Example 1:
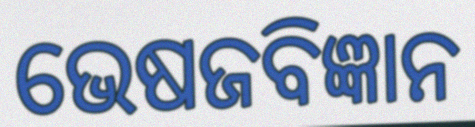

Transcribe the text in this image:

ଭେଷଜବିଜ୍ଞାନ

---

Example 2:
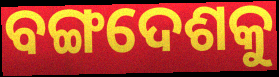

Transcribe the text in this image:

ବଙ୍ଗଦେଶକୁ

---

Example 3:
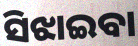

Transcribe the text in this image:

ସିଝାଇବା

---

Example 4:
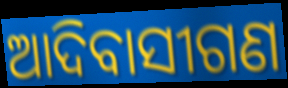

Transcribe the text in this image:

ଆଦିବାସୀଗଣ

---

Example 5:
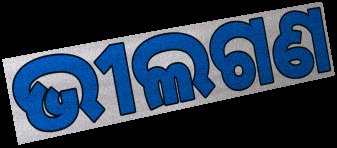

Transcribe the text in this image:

ଭୀଲଗଣ